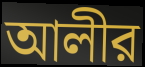
আলীর